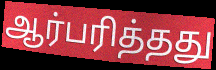
ஆர்பரித்தது